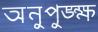
অনুপুঙ্ক্ষ